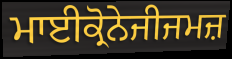
ਮਾਈਕ੍ਰੋਨੇਜੀਜਮਜ਼